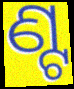
ଣ୍ଟ